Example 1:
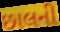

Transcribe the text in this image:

છાલની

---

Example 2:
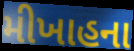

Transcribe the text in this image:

મીખાહના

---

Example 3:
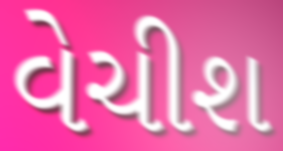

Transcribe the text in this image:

વેચીશ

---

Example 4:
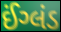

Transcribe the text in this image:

ઈંગ્લંડ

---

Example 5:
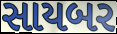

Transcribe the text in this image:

સાયબર